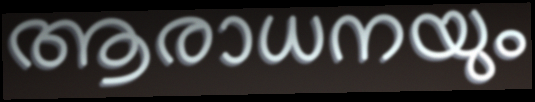
ആരാധനയും